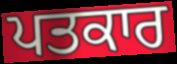
ਪਤਕਾਰ